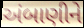
અંબાણીને